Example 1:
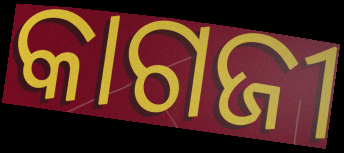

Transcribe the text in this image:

କାଗଜୀ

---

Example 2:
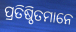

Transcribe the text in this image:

ପ୍ରତିଷ୍ଠିତମାନେ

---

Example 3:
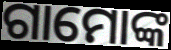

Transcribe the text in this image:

ଗାମୋଙ୍କ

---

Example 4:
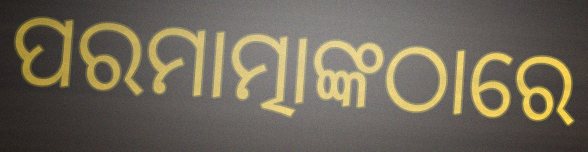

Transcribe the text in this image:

ପରମାତ୍ମାଙ୍କଠାରେ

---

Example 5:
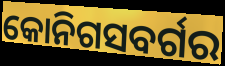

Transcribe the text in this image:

କୋନିଗସବର୍ଗର